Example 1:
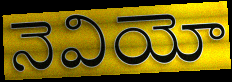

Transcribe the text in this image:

నెవియో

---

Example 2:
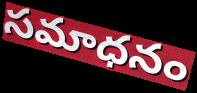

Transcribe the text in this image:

సమాధనం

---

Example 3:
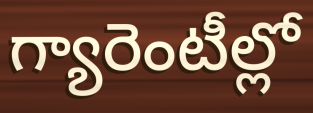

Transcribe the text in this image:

గ్యారెంటీల్లో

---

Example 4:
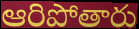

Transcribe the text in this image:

ఆరిపోతారు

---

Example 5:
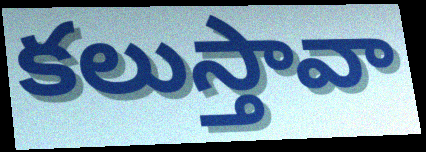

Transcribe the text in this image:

కలుస్తావా